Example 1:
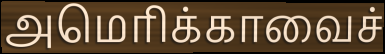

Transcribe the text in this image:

அமெரிக்காவைச்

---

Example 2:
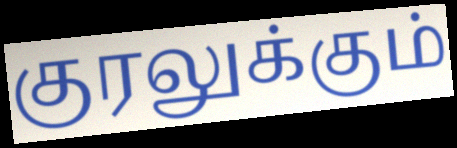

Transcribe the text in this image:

குரலுக்கும்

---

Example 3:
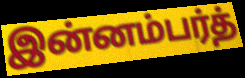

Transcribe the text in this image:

இன்னம்பர்த்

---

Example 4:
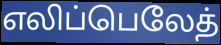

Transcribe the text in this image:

எலிப்பெலேத்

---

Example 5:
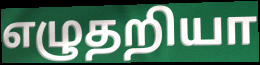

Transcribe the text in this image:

எழுதறியா